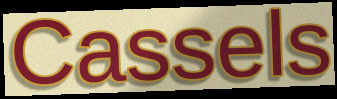
Cassels